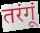
तरंगूं